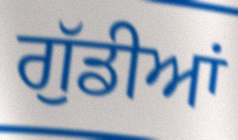
ਗੁੱਡੀਆਂ